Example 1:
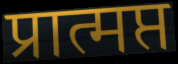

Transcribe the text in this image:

प्रात्मप्त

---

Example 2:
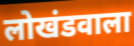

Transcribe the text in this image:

लोखंडवाला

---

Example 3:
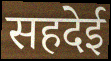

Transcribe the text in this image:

सहदेई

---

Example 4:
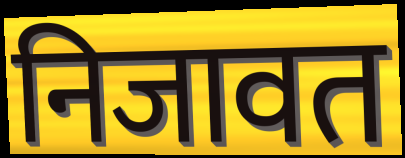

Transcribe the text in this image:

निजावत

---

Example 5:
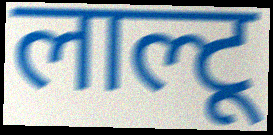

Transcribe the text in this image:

लाल्‍टू